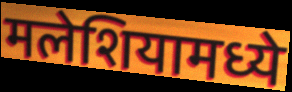
मलेशियामध्ये